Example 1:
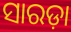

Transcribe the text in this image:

ସାରଡ଼ା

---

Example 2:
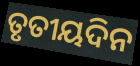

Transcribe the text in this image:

ତୃତୀୟଦିନ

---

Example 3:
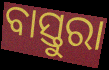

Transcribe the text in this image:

ବାସ୍ତୁରା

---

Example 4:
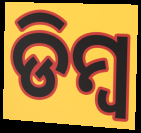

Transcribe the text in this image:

ଡିମ୍ବ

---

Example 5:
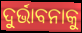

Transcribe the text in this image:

ଦୁର୍ଭାବନାକୁ